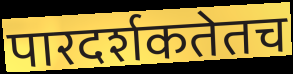
पारदर्शकतेतच